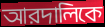
আরদালিকে